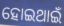
ହୋଇଥାଇଁ